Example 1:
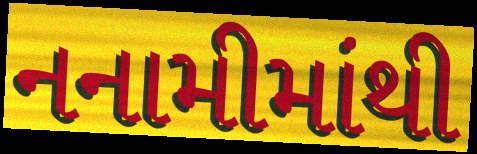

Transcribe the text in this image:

નનામીમાંથી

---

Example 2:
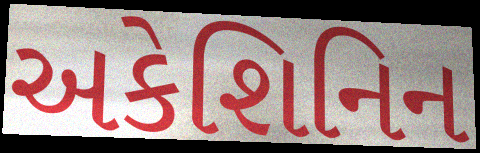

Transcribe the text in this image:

અકેશિનિન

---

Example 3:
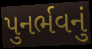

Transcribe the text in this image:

પુનર્ભવનું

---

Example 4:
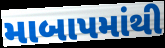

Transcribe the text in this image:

માબાપમાંથી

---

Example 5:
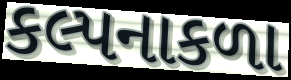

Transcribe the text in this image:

કલ્પનાકળા